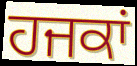
ਹਜਕਾਂ